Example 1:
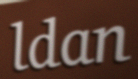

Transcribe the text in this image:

ldan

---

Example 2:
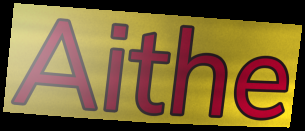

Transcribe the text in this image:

Aithe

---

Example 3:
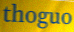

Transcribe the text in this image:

thoguo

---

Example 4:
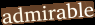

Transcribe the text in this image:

admirable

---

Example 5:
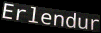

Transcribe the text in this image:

Erlendur